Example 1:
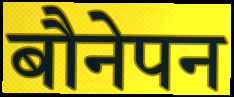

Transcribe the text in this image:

बौनेपन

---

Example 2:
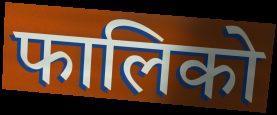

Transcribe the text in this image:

फालिको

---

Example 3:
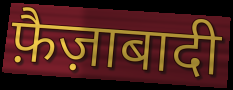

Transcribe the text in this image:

फ़ैज़ाबादी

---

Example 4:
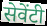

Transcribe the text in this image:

सेवेंटी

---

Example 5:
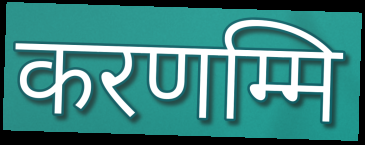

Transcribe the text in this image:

करणम्मि